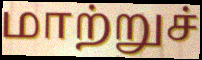
மாற்றுச்